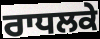
ਰਾਧਲਕੇ